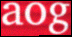
aog